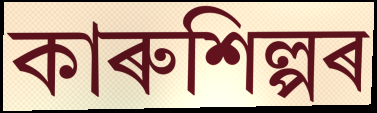
কাৰুশিল্পৰ